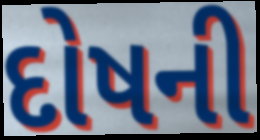
દોષની